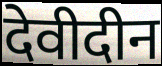
देवीदीन